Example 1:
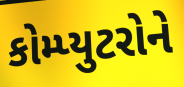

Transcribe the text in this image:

કોમ્પ્યુટરોને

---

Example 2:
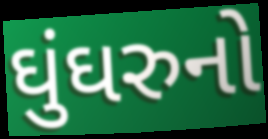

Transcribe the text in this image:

ઘુંઘરુનો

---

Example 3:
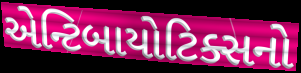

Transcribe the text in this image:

એન્ટિબાયોટિક્સનો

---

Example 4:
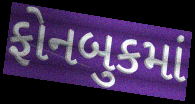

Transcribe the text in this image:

ફોનબુકમાં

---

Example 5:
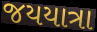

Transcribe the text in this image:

જયયાત્રા